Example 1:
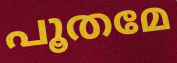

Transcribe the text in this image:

പൂതമേ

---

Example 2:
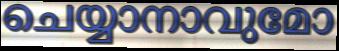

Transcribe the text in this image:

ചെയ്യാനാവുമോ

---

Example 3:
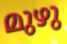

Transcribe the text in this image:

മുഴു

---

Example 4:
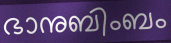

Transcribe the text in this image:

ഭാനുബിംബം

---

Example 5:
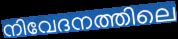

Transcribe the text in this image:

നിവേദനത്തിലെ